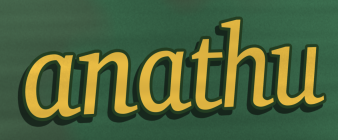
anathu